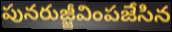
పునరుజ్జీవింపజేసిన